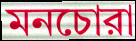
মনচোরা